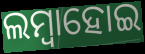
ଲମ୍ୱାହୋଇ